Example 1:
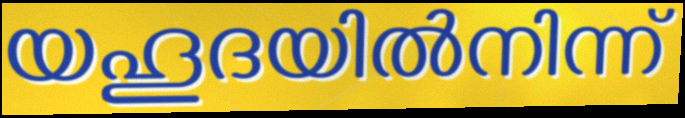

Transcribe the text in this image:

യഹൂദയിൽനിന്ന്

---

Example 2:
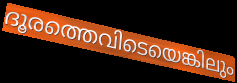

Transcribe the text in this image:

ദൂരത്തെവിടെയെങ്കിലും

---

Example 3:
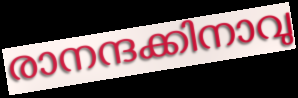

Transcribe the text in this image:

രാനന്ദക്കിനാവു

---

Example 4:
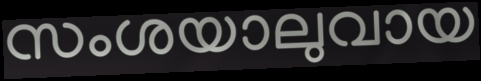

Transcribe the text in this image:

സംശയാലുവായ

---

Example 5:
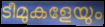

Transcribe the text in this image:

ടീമുകളേയും